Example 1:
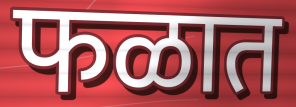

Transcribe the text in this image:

फळात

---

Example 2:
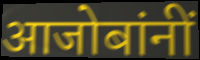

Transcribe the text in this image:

आजोबांनीं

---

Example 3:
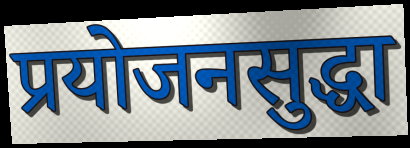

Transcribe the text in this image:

प्रयोजनसुद्धा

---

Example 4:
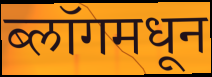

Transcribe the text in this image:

ब्लॉगमधून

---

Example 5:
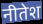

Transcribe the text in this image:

नीतेश